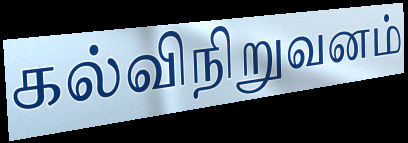
கல்விநிறுவனம்